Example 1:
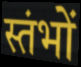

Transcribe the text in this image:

स्तंभों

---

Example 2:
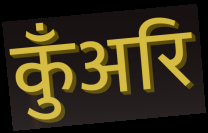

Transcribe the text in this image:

कुँअरि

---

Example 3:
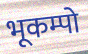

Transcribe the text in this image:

भूकम्पो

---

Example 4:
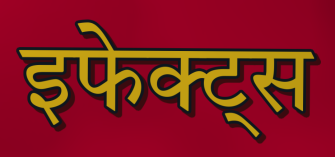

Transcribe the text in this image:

इफेक्‍ट्स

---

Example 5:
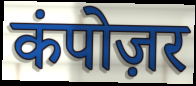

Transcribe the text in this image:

कंपोज़र